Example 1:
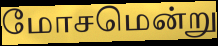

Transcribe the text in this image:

மோசமென்று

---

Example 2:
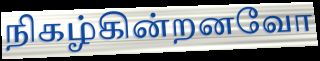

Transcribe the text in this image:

நிகழ்கின்றனவோ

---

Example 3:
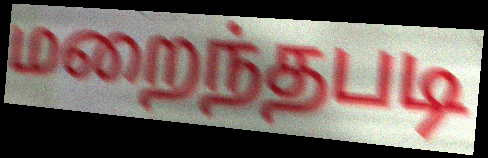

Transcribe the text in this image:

மறைந்தபடி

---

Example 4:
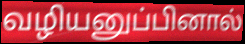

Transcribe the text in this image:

வழியனுப்பினால்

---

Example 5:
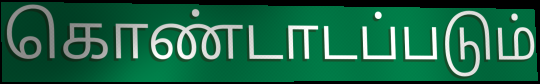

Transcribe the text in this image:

கொண்டாடப்படும்